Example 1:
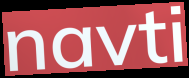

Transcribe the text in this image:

navti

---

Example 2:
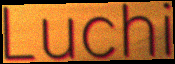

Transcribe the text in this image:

Luchi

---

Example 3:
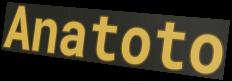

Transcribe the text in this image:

Anatoto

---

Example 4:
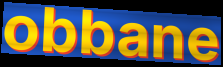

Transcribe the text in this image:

obbane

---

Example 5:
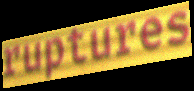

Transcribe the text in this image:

ruptures